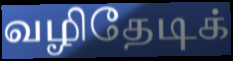
வழிதேடிக்